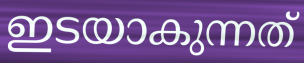
ഇടയാകുന്നത്